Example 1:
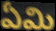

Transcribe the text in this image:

ఏమి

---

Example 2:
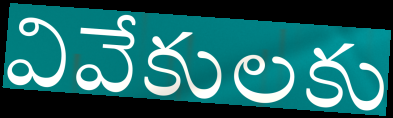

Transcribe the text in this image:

వివేకులకు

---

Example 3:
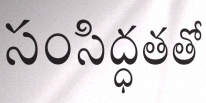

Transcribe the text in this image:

సంసిద్ధతతో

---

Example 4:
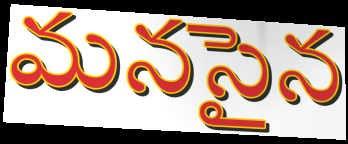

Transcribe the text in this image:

మనసైన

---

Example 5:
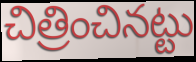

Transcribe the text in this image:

చిత్రించినట్టు